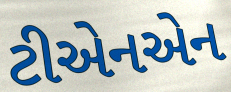
ટીએનએન